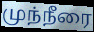
முந்நீரை